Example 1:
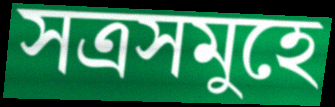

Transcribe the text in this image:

সত্ৰসমুহে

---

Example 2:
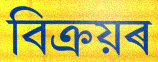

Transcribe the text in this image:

বিক্ৰয়ৰ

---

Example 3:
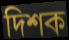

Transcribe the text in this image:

দিশক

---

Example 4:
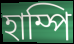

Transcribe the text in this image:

হাম্পি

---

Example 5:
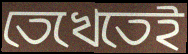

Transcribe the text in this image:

তেখেতেই